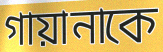
গায়ানাকে